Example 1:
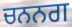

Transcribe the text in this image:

ਚਨਨਗ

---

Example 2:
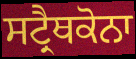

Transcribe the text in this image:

ਸਟ੍ਰੈਥਕੋਨਾ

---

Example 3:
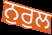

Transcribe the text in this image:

ਨੁਰੁਲ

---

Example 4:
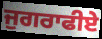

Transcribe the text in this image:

ਜੁਗਰਾਫੀਏ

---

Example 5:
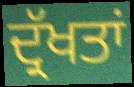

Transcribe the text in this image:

ਦ੍ਰੱਖਤਾਂ